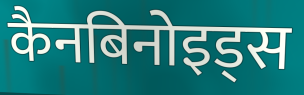
कैनबिनोइड्स